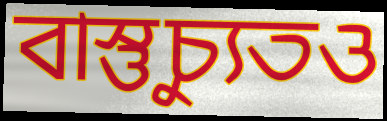
বাস্তুচ্যুতও